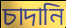
চাদানি